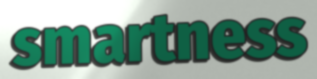
smartness